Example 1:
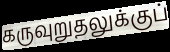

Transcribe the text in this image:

கருவுறுதலுக்குப்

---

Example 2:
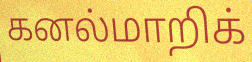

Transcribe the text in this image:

கனல்மாறிக்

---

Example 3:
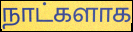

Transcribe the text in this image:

நாட்களாக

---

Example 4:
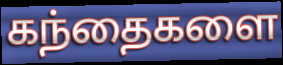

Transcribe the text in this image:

கந்தைகளை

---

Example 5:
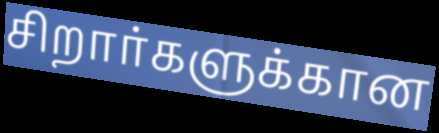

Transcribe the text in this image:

சிறார்களுக்கான